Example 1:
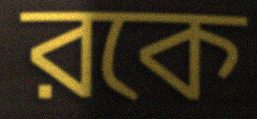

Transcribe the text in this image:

রকে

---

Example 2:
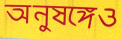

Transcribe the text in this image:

অনুষঙ্গেও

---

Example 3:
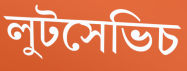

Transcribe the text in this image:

লুটসেভিচ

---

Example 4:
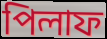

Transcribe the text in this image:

পিলাফ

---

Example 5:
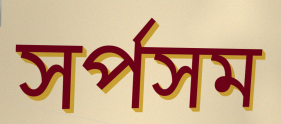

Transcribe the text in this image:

সর্পসম